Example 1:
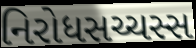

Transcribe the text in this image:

નિરોધસચ્ચસ્સ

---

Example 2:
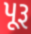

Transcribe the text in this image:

પૂરૂ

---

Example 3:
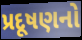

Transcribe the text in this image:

પ્રદૂષણનો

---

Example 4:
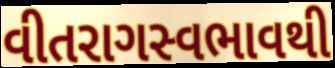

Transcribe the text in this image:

વીતરાગસ્વભાવથી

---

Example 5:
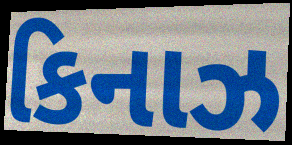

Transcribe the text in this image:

કિનાઝ